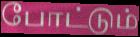
போட்டும்